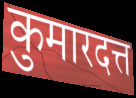
कुमारदत्त